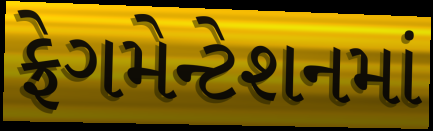
ફ્રેગમેન્ટેશનમાં